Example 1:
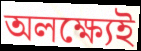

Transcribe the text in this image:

অলক্ষ্যেই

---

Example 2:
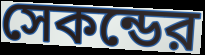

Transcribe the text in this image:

সেকন্ডের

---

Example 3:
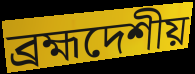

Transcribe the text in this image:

ব্রহ্মদেশীয়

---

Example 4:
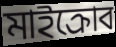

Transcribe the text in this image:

মাইক্রোব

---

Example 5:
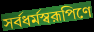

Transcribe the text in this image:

সর্বধর্মস্বরূপিণে